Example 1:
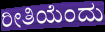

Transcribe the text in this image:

ರೀತಿಯೆಂದು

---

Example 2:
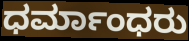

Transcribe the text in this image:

ಧರ್ಮಾಂಧರು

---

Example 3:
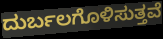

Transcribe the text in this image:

ದುರ್ಬಲಗೊಳಿಸುತ್ತವೆ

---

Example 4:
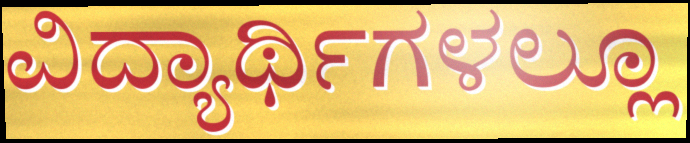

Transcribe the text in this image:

ವಿದ್ಯಾರ್ಥಿಗಳಲ್ಲೂ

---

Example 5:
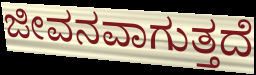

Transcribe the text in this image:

ಜೀವನವಾಗುತ್ತದೆ